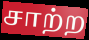
சாற்ற